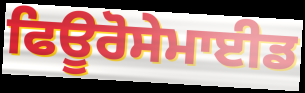
ਫਿਊਰੋਸੇਮਾਈਡ